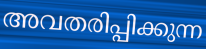
അവതരിപ്പിക്കുന്ന